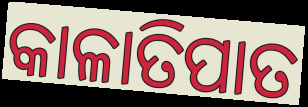
କାଳାତିପାତ